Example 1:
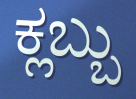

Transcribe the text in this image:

ಕ್ಲಬ್ಬು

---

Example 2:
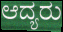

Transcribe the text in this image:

ಆದ್ಯರು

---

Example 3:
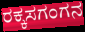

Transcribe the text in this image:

ರಕ್ಕಸಗಂಗನ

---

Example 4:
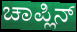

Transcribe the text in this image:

ಚಾಪ್ಲಿನ್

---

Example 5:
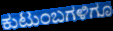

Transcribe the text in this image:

ಕುಟುಂಬಗಳಿಗೂ